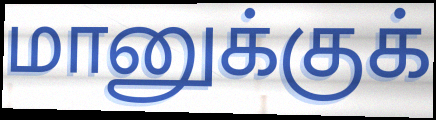
மானுக்குக்